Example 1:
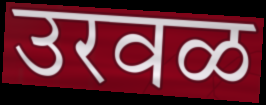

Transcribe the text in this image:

उरवळ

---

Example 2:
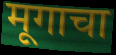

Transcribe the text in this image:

मूगाचा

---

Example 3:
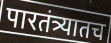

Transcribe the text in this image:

पारतंत्र्यातच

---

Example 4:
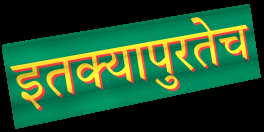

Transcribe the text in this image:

इतक्यापुरतेच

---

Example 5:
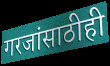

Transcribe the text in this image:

गरजांसाठीही